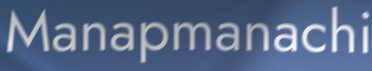
Manapmanachi